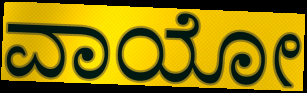
ವಾಯೋ